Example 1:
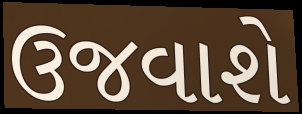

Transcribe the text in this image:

ઉજવાશે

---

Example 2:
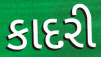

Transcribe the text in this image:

કાદરી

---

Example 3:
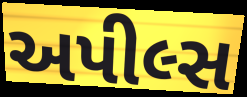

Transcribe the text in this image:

અપીલ્સ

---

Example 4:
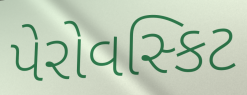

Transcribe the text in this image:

પેરોવસ્કિટ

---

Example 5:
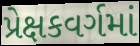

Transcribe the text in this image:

પ્રેક્ષકવર્ગમાં